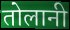
तोलानी